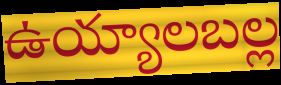
ఉయ్యాలబల్ల